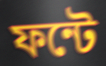
ফন্টে